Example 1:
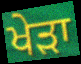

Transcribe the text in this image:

ਖੇੜਾ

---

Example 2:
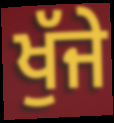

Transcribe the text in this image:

ਖੁੱਜੇ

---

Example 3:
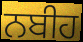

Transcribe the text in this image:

ਨਬੀਹ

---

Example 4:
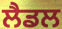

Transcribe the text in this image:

ਲੈਡਲ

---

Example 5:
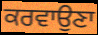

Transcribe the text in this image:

ਕਰਵਾਉਣਾ